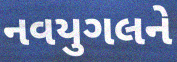
નવયુગલને